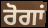
ਰੋਗਾਂ